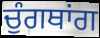
ਚੁੰਗਥਾਂਗ